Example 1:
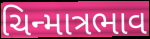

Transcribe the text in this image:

ચિન્માત્રભાવ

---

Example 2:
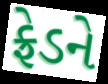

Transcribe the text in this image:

ફ્રેડને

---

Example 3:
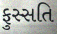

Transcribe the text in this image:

ફુસ્સતિ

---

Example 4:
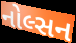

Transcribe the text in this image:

નોલ્સન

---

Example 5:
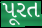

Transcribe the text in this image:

પૂરત